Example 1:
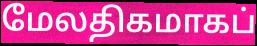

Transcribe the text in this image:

மேலதிகமாகப்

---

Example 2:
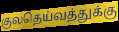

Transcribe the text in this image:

குலதெய்வத்துக்கு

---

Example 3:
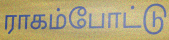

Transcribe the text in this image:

ராகம்போட்டு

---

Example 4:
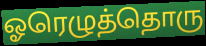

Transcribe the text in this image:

ஓரெழுத்தொரு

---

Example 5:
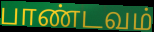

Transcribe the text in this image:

பாண்டவம்